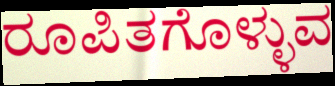
ರೂಪಿತಗೊಳ್ಳುವ